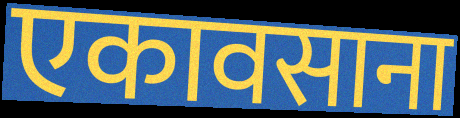
एकावसाना